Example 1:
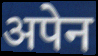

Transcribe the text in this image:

अपेन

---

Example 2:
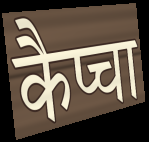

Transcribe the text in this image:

कैप्चा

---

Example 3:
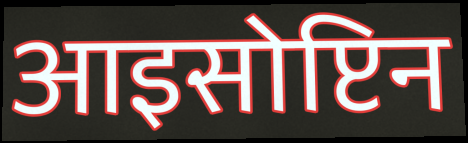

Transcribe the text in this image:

आइसोप्टिन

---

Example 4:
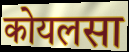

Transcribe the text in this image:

कोयलसा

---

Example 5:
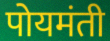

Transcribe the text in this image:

पोयमंती